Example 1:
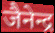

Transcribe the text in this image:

जैनेन्‍द्र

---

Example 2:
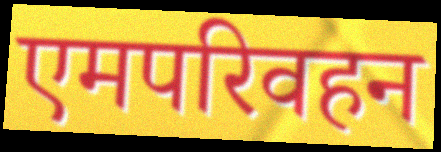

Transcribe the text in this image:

एमपरिवहन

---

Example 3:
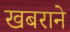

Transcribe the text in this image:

खबराने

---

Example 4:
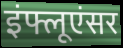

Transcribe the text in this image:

इंफ्लूएंसर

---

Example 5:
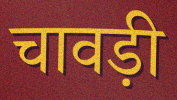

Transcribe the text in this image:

चावड़ी